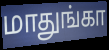
மாதுங்கா